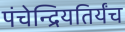
पंचेन्द्रियतिर्यंच